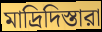
মাদ্রিদিস্তারা